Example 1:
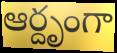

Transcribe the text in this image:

ఆర్దృంగా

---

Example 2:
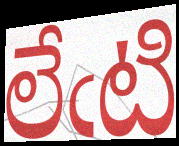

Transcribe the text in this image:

లేఁటి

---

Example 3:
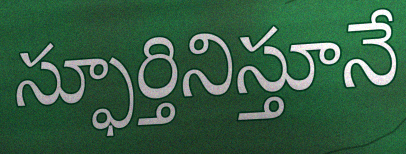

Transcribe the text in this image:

స్ఫూర్తినిస్తూనే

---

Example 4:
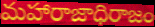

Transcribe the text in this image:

మహారాజాధిరాజం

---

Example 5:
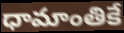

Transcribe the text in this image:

ధామాంతికే